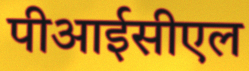
पीआईसीएल